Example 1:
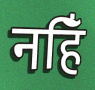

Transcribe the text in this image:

नहिँ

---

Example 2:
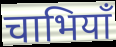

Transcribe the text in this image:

चाभियाँ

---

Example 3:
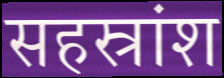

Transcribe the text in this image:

सहस्रांश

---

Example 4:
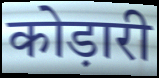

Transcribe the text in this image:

कोड़ारी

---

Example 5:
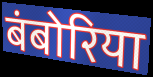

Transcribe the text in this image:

बंबोरिया